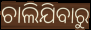
ଚାଲିଯିବାରୁ